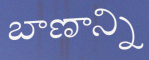
బాణాన్ని